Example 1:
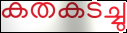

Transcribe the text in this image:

കതകടച്ചു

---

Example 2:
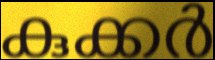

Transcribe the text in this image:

കുക്കർ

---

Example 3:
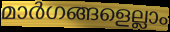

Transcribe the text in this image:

മാർഗങ്ങളെല്ലാം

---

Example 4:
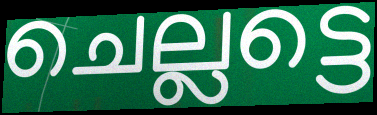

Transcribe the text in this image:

ചെല്ലട്ടെ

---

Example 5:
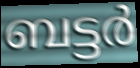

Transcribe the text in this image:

ബട്ടർ